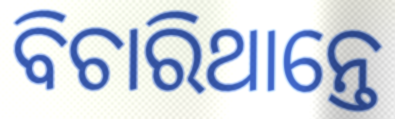
ବିଚାରିଥାନ୍ତେ